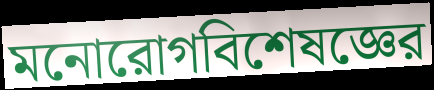
মনোরোগবিশেষজ্ঞের